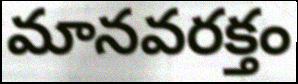
మానవరక్తం